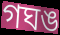
গঘঙ